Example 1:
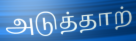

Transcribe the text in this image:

அடுத்தாற்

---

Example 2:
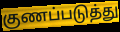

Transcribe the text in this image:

குணப்படுத்து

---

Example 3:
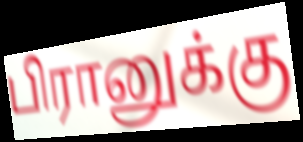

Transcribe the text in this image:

பிரானுக்கு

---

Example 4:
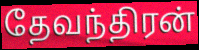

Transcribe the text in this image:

தேவந்திரன்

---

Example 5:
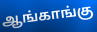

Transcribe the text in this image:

ஆங்காங்கு